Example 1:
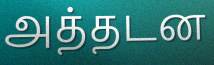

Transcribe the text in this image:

அத்தடன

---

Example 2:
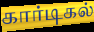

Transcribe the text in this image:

கார்டிகல்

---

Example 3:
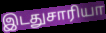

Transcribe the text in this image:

இடதுசாரியா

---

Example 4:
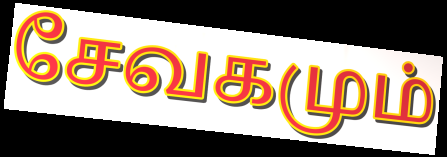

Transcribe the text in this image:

சேவகமும்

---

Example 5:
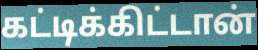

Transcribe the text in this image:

கட்டிக்கிட்டான்